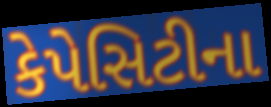
કેપેસિટીના